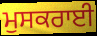
ਮੁਸਕਰਾਈ